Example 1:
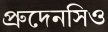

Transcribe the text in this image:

প্রুদেনসিও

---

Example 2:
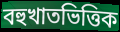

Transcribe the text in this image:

বহুখাতভিত্তিক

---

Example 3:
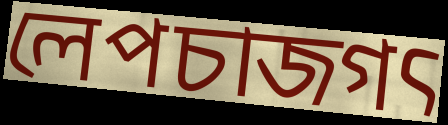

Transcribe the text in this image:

লেপচাজগৎ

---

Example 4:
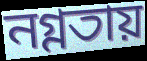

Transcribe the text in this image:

নগ্নতায়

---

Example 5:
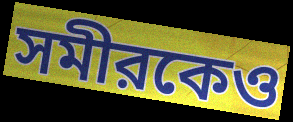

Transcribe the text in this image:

সমীরকেও